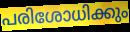
പരിശോധിക്കും